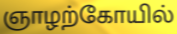
ஞாழற்கோயில்